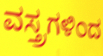
ವಸ್ತ್ರಗಳಿಂದ